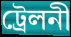
ট্রেলনী